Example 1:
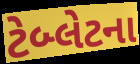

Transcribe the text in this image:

ટેબ્લેટના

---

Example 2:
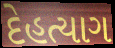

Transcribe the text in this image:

દેહત્યાગ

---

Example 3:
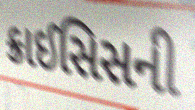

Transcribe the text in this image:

ક્રાઈસિસની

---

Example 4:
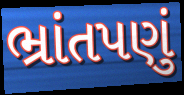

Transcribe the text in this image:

ભ્રાંતપણું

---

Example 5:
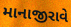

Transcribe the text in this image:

માનાજીરાવે